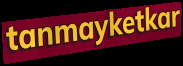
tanmayketkar